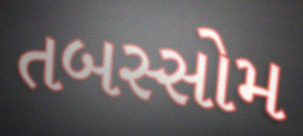
તબસ્સોમ